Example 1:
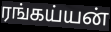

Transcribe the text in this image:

ரங்கய்யன்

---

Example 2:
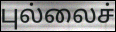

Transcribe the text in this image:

புல்லைச்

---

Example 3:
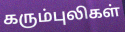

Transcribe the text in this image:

கரும்புலிகள்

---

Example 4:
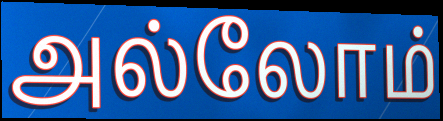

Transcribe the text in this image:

அல்லோம்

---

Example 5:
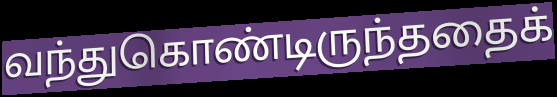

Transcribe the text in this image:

வந்துகொண்டிருந்ததைக்